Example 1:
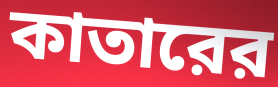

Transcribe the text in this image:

কাতারের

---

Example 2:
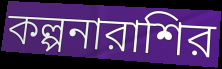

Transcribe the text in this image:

কল্পনারাশির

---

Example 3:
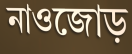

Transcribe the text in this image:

নাওজোড়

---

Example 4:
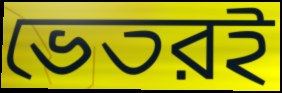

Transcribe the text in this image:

ভেতরই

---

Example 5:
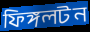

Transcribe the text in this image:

ফিঙ্গলটন